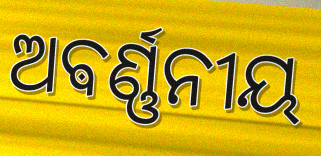
ଅଵର୍ଣ୍ଣନୀୟ